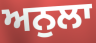
ਅਨੁਲਾ